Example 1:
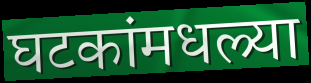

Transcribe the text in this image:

घटकांमधल्या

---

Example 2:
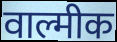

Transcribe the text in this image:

वाल्मीक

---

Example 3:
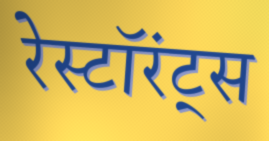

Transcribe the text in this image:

रेस्टॉरंट्‌स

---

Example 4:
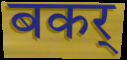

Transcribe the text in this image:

बकर्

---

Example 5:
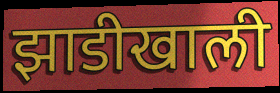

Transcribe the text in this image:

झाडीखाली